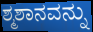
ಶ್ಮಶಾನವನ್ನು